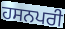
ਹਸਨਪਰੀ